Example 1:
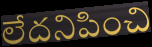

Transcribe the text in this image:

లేదనిపించి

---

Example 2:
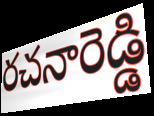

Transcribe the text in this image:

రచనారెడ్డి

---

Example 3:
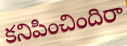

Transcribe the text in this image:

కనిపించిందిరా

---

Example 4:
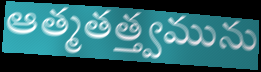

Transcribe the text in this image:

ఆత్మతత్త్వమును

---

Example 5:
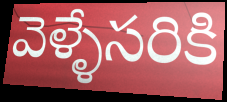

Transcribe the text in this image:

వెళ్ళేసరికి